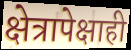
क्षेत्रापेक्षाही